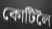
কোটিলৈ